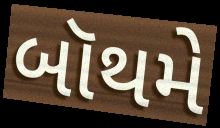
બૉથમે